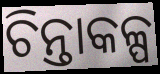
ଚିନ୍ତାକଳ୍ପ